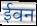
ईवन